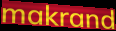
makrand